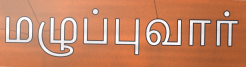
மழுப்புவார்